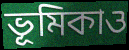
ভূমিকাও